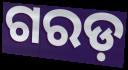
ଗରଡ଼